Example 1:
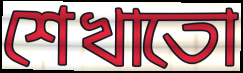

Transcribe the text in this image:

শেখাতো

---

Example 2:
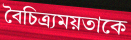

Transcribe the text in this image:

বৈচিত্র্যময়তাকে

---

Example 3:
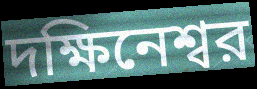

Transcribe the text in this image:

দক্ষিনেশ্বর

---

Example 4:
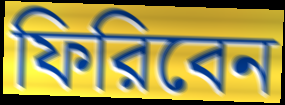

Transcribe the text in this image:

ফিরিবেন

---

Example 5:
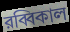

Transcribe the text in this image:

রব্বিকাল